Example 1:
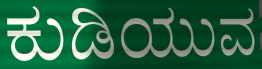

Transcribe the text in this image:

ಕುಡಿಯುವ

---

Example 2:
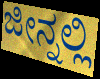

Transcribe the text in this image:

ಜೀನ್ನಲ್ಲಿ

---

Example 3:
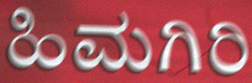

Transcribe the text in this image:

ಹಿಮಗಿರಿ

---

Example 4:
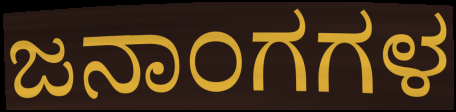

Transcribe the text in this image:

ಜನಾಂಗಗಳ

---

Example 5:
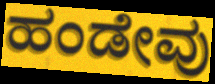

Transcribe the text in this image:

ಹಂಡೇವು